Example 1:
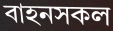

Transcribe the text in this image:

বাহনসকল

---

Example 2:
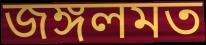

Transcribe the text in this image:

জঙ্গলমত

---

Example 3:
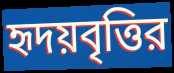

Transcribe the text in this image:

হৃদয়বৃত্তির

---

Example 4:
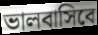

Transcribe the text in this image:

ভালবাসিবে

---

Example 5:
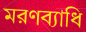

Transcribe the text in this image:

মরণব্যাধি